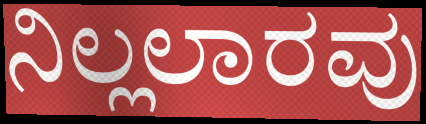
ನಿಲ್ಲಲಾರವು